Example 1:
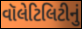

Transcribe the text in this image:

વૉલેટિલિટીનું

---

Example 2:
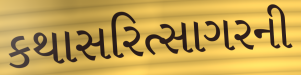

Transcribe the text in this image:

કથાસરિત્સાગરની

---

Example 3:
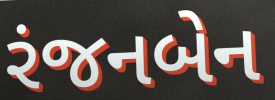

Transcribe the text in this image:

રંજનબેન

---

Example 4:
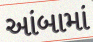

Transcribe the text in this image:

આંબામાં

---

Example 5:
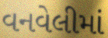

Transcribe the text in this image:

વનવેલીમાં